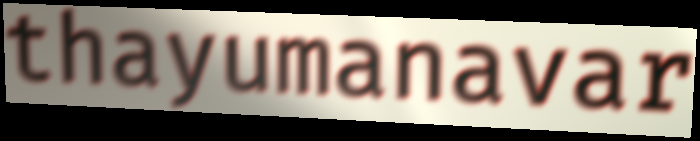
thayumanavar